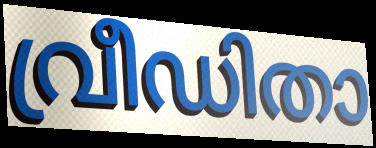
വ്രീഡിതാ